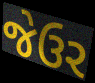
જેઉર